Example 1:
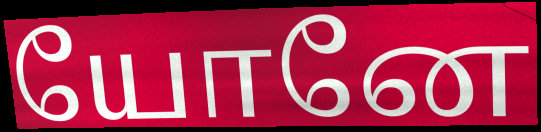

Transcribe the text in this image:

யோனே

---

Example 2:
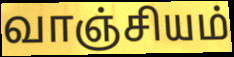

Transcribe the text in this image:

வாஞ்சியம்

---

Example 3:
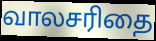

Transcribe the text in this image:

வாலசரிதை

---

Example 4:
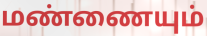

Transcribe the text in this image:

மண்ணையும்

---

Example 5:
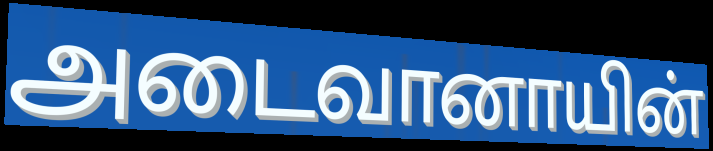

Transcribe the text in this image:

அடைவானாயின்